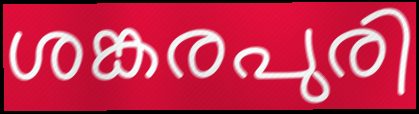
ശങ്കരപുരി